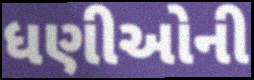
ધણીઓની